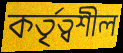
কৰ্তৃত্বশীল